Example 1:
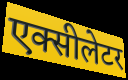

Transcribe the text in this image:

एक्सीलेटर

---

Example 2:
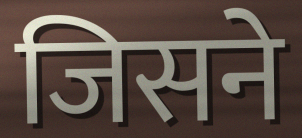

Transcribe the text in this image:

जिसने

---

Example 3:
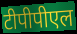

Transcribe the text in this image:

टीपीपीएल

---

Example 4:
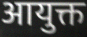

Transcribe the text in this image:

आयुक्त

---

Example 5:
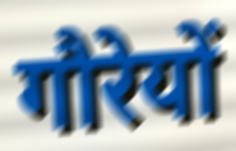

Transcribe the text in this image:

गौरेयों